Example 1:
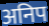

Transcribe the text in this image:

अनिप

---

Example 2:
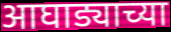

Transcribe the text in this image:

आघाड्याच्या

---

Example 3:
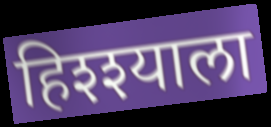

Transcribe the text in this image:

हिश्श्याला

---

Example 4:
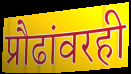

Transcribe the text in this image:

प्रौढांवरही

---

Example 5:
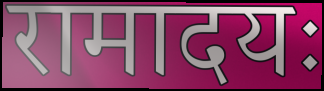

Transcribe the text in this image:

रामादयः